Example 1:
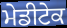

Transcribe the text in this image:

ਮੇਡੀਟੇਕ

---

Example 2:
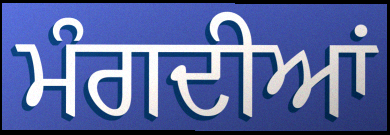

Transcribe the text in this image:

ਮੰਗਦੀਆਂ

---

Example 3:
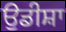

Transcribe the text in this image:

ਉਡੀਸ਼ਾ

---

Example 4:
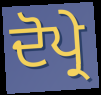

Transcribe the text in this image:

ਦੋਪ੍ਰੇ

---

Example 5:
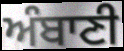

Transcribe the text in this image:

ਅੰਬਾਣੀ